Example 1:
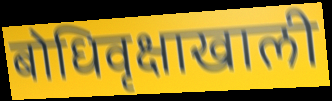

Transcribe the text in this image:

बोधिवृक्षाखाली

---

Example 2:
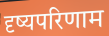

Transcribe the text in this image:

दृष्यपरिणाम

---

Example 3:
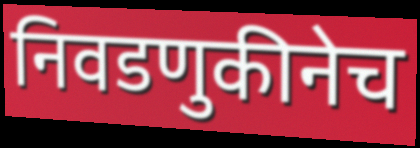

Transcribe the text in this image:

निवडणुकीनेच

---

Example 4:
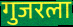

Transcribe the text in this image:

गुजरला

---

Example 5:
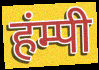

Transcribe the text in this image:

हंम्पी